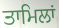
ਤਾਮਿਲਾਂ